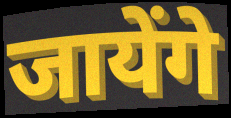
जायेंगे